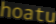
hoatu